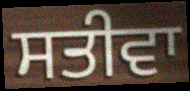
ਸਤੀਵਾ